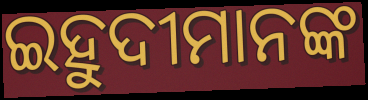
ଇହୁଦୀମାନଙ୍କ